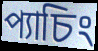
প্যাচিং